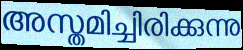
അസ്തമിച്ചിരിക്കുന്നു